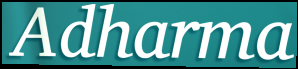
Adharma